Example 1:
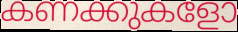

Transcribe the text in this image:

കണക്കുകളോ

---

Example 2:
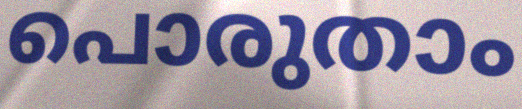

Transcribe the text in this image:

പൊരുതാം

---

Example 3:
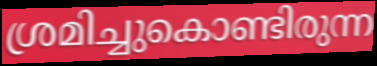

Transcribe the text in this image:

ശ്രമിച്ചുകൊണ്ടിരുന്ന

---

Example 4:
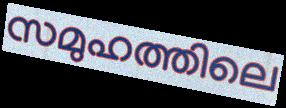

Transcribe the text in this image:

സമുഹത്തിലെ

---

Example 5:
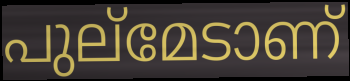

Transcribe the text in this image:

പുല്മേടാണ്